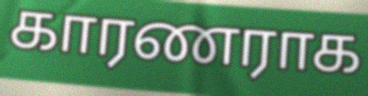
காரணராக